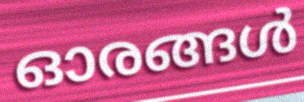
ഓരങ്ങൾ